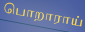
பொறாராய்